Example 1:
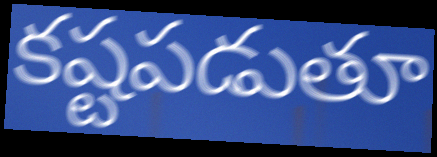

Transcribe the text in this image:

కష్టపడుతూ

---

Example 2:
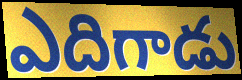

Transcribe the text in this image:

ఎదిగాడు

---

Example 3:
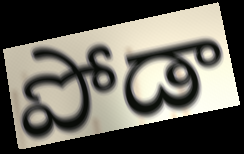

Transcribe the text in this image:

పోడా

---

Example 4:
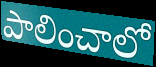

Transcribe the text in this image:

పాలించాలో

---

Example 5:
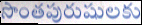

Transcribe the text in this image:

సొంతపురుషులకు